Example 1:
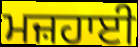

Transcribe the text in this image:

ਮਜ਼ਹਾਈ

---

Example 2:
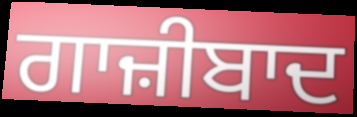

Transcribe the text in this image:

ਗਾਜ਼ੀਬਾਦ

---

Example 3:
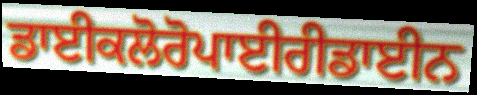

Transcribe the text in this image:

ਡਾਈਕਲੋਰੋਪਾਈਰੀਡਾਈਨ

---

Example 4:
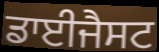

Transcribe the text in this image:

ਡਾਈਜੈਸਟ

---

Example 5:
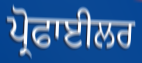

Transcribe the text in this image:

ਪ੍ਰੋਫਾਈਲਰ